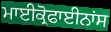
ਮਾਈਕ੍ਰੋਫਾਈਨਾਂਸ